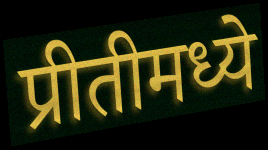
प्रीतीमध्ये